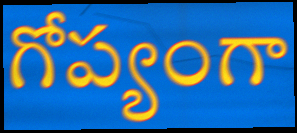
గోప్యంగా